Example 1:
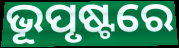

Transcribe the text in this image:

ଭୂପୃଷ୍ଟରେ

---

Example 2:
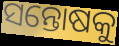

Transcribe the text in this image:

ସନ୍ତୋଷକୁ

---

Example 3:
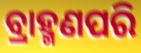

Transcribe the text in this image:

ବ୍ରାହ୍ମଣପରି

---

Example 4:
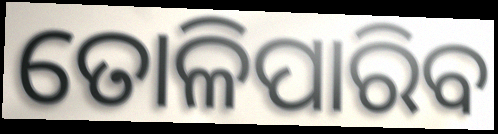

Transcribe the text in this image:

ତୋଳିପାରିବ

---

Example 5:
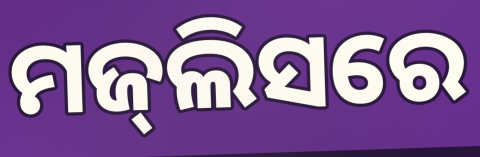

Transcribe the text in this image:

ମଜ୍‍ଲିସରେ